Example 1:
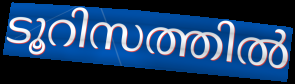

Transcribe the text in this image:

ടൂറിസത്തിൽ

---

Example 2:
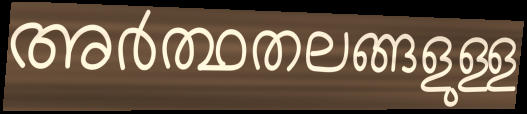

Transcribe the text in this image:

അർത്ഥതലങ്ങളുള്ള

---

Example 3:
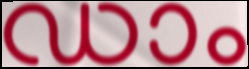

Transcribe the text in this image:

ഡാം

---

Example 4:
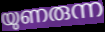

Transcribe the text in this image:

യുണരുന്ന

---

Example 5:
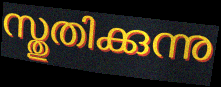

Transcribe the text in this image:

സ്തുതിക്കുന്നു